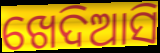
ଖେଦିଆସି